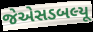
જેએસડબલ્યૂ